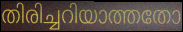
തിരിച്ചറിയാത്തതോ